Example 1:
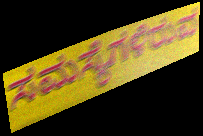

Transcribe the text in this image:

ಸಮಸ್ಯೆಗಳಿರುವ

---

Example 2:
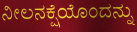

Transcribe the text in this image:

ನೀಲನಕ್ಷೆಯೊಂದನ್ನು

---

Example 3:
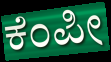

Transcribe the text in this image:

ಕೆಂಪೀ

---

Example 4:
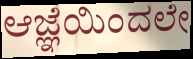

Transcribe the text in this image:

ಆಜ್ಞೆಯಿಂದಲೇ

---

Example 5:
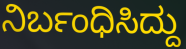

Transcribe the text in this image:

ನಿರ್ಬಂಧಿಸಿದ್ದು